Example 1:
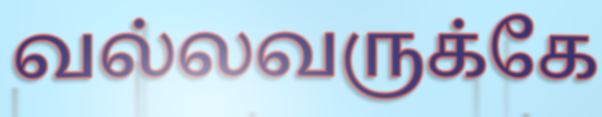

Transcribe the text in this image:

வல்லவருக்கே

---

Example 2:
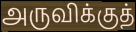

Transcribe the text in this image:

அருவிக்குத்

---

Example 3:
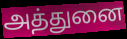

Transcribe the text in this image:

அத்துனை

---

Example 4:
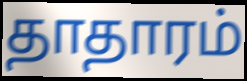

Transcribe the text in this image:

தாதாரம்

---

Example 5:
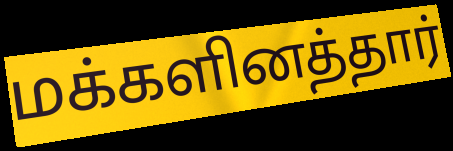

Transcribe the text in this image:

மக்களினத்தார்